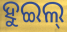
ହୁଇଲ୍